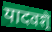
यादवश्रे